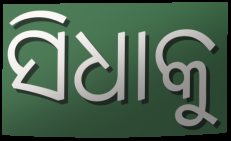
ସିଧାକୁ